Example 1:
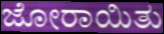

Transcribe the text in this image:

ಜೋರಾಯಿತು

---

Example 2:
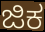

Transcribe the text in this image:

ಜಿಕ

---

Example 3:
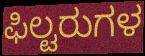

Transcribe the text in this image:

ಫಿಲ್ಟರುಗಳ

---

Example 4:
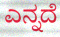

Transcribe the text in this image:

ಎನ್ನದೆ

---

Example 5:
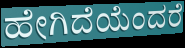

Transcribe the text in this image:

ಹೇಗಿದೆಯೆಂದರೆ